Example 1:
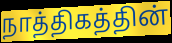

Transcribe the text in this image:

நாத்திகத்தின்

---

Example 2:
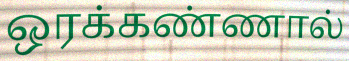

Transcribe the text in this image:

ஒரக்கண்ணால்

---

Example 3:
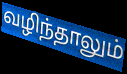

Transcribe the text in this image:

வழிந்தாலும்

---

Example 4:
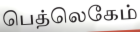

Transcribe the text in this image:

பெத்லெகேம்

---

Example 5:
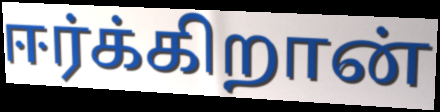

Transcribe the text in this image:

ஈர்க்கிறான்